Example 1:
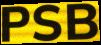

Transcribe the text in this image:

PSB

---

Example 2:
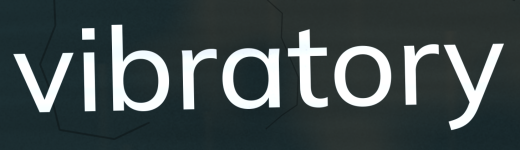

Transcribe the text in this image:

vibratory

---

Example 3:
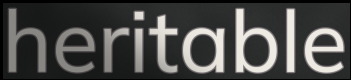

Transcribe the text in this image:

heritable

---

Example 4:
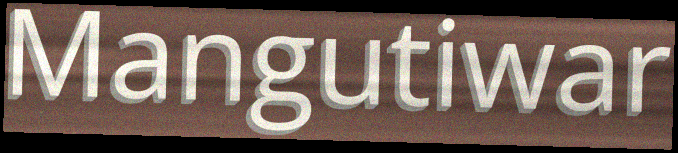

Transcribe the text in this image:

Mangutiwar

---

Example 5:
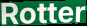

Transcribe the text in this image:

Rotter